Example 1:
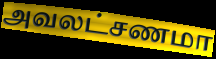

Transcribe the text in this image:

அவலட்சணமா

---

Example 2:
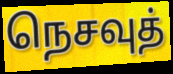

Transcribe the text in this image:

நெசவுத்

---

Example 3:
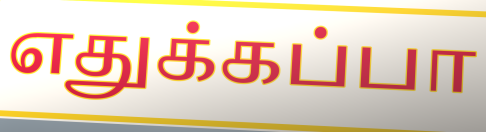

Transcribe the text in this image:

எதுக்கப்பா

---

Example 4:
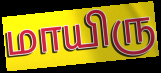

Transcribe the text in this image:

மாயிரு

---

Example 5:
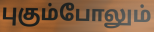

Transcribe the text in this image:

புகும்போலும்